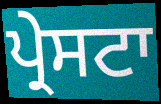
ਪ੍ਰੇਸਟਾ